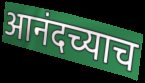
आनंदच्याच